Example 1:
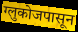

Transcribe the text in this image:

ग्लुकोजपासून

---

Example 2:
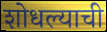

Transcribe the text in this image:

शोधल्याची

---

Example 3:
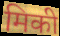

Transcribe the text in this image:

मिकी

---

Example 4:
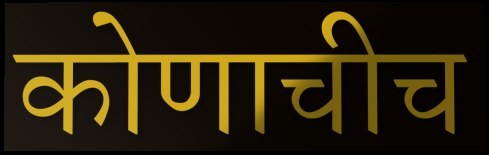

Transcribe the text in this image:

कोणाचीच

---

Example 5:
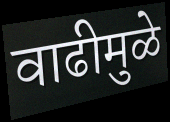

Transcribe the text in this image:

वाढीमुळे